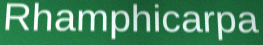
Rhamphicarpa